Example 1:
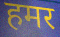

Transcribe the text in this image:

हमर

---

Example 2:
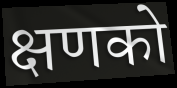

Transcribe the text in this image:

क्षणको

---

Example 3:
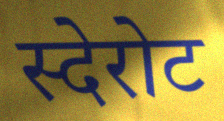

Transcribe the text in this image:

स्देरोट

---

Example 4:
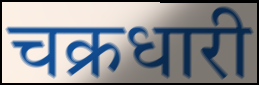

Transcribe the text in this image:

चक्रधारी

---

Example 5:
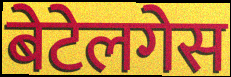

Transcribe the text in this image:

बेटेलगेस